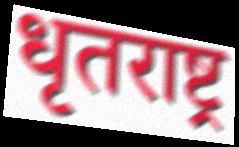
धृतराष्ट्र